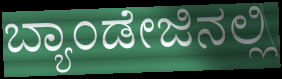
ಬ್ಯಾಂಡೇಜಿನಲ್ಲಿ